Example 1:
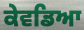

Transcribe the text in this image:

ਕੇਵਡਿਆ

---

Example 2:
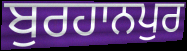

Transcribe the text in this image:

ਬੁਰਹਾਨਪੁਰ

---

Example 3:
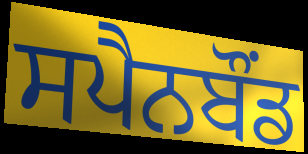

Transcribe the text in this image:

ਸਪੈਨਬੌਂਡ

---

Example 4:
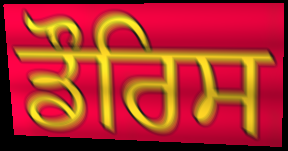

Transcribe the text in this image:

ਡੌਰਿਸ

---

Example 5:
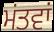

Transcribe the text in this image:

ਮਂਤਵਾਂ